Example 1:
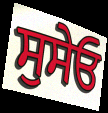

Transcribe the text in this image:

ਸੁਸੇਓ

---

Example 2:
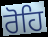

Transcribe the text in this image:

ਰੋਹਿ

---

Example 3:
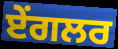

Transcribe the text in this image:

ਏਂਗਲਰ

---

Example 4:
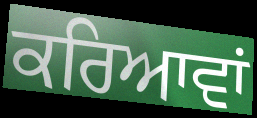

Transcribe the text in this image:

ਕਰਿਆਵਾਂ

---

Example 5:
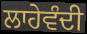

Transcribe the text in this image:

ਲਾਹੇਵੰਦੀ